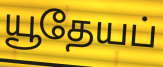
யூதேயப்